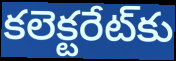
కలెక్టరేట్‌కు